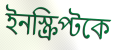
ইনস্ক্রিপ্টকে